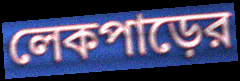
লেকপাড়ের